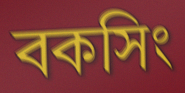
বকসিং